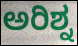
ಅರಿಶ್ನ